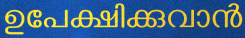
ഉപേക്ഷിക്കുവാൻ